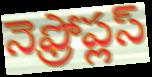
నెఫ్రోప్లస్